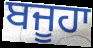
ਬਜੂਹਾ